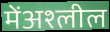
मेंअश्लील